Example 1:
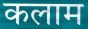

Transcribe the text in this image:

कलाम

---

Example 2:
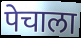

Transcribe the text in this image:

पेचाला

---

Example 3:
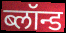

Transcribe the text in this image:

ब्लॉन्ड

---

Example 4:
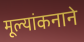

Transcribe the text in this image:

मूल्यांकनाने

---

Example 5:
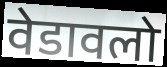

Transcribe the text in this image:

वेडावलो